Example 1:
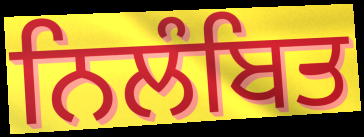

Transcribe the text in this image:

ਨਿਲੰਬਿਤ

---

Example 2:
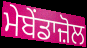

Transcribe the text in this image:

ਮੇਬੇਂਡਾਜ਼ੋਲ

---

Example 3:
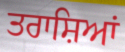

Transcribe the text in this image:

ਤਰਾਸ਼ਿਆਂ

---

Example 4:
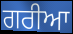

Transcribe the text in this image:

ਗਰੀਆ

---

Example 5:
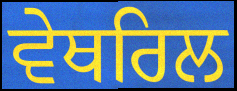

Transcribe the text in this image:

ਵੇਥਰਿਲ